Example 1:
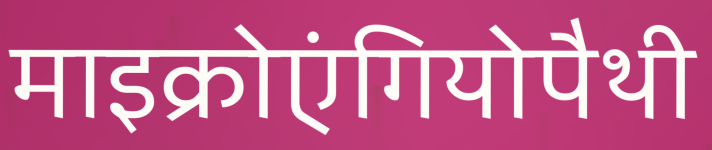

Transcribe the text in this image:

माइक्रोएंगियोपैथी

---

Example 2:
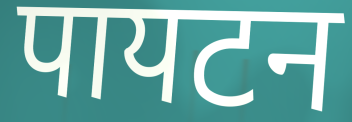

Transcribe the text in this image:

पायटन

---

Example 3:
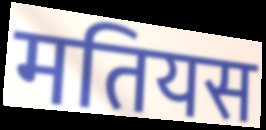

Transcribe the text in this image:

मतियस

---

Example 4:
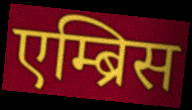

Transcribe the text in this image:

एम्ब्रिस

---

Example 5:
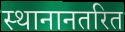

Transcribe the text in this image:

स्थानानतरित